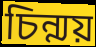
চিন্ময়